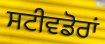
ਸਟੀਵਡੋਰਾਂ